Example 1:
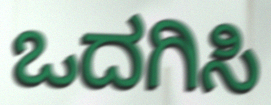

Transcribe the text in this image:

ಒದಗಿಸಿ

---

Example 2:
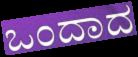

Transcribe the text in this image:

ಒಂದಾದ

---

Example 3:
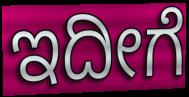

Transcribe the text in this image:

ಇದೀಗೆ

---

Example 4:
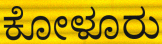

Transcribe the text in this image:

ಕೋಳೂರು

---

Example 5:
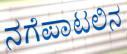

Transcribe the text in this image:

ನಗೆಪಾಟಲಿನ